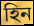
হিন